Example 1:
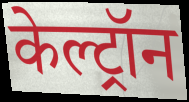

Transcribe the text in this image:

केल्ट्रॉन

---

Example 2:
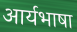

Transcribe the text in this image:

आर्यभाषा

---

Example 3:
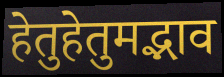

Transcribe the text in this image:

हेतुहेतुमद्भाव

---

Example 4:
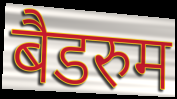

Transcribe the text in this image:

बैडरुम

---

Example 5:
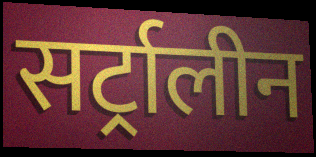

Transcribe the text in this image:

सर्ट्रालीन